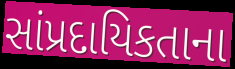
સાંપ્રદાયિકતાના